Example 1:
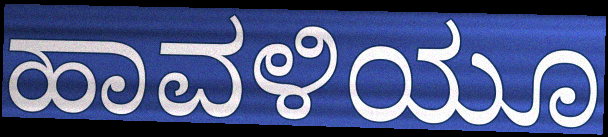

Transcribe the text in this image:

ಹಾವಳಿಯೂ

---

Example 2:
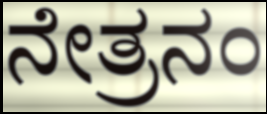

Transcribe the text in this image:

ನೇತ್ರನಂ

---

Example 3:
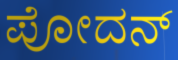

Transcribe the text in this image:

ಪೋದನ್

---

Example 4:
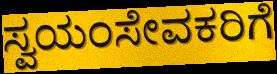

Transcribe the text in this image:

ಸ್ವಯಂಸೇವಕರಿಗೆ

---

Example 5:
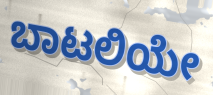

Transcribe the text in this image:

ಬಾಟಲಿಯೇ